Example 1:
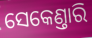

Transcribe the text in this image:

ସେକେଣ୍ତାରି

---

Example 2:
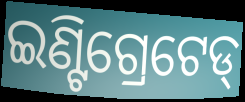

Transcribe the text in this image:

ଇଣ୍ଟିଗ୍ରେଟେଡ୍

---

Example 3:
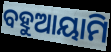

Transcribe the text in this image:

ବହୁଆୟାମି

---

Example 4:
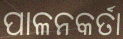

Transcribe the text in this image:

ପାଳନକର୍ତା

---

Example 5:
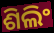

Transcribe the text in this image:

ଶିଲିଂ